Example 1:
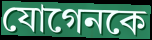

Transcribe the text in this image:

যোগেনকে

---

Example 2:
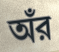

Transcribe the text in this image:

অঁর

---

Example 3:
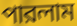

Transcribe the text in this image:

পারলাম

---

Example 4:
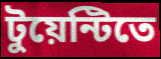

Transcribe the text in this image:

টুয়েন্টিতে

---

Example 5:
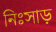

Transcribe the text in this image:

নিঃসাড়